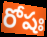
రోషః